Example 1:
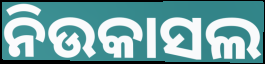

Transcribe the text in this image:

ନିଉକାସଲ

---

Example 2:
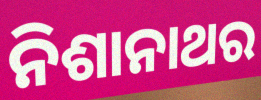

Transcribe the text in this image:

ନିଶାନାଥର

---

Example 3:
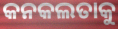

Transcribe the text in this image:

କନକଲତାକୁ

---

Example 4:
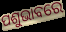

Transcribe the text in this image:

ପଶୁଭାବରେ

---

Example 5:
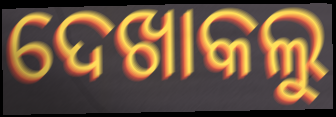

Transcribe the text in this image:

ଦେଖାକଲୁ